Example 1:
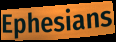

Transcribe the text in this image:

Ephesians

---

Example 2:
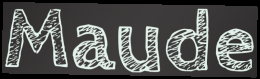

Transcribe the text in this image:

Maude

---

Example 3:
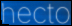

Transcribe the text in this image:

hecto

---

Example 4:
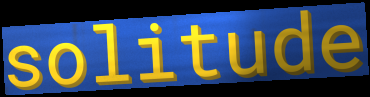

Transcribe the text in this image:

solitude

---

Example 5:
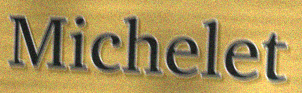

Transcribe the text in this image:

Michelet